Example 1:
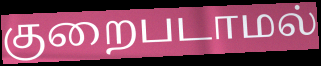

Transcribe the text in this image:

குறைபடாமல்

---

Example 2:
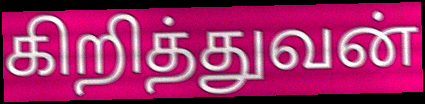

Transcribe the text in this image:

கிறித்துவன்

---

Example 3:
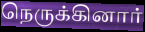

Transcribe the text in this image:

நெருக்கினார்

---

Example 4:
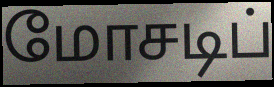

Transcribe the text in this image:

மோசடிப்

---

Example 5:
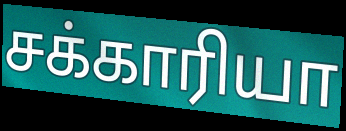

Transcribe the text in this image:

சக்காரியா